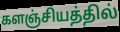
களஞ்சியத்தில்